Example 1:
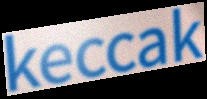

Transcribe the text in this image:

keccak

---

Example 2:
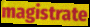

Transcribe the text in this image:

magistrate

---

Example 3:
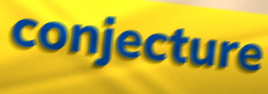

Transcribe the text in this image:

conjecture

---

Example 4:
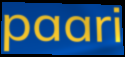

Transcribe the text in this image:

paari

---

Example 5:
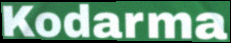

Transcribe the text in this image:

Kodarma